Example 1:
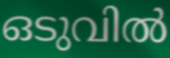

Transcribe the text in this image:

ഒടുവിൽ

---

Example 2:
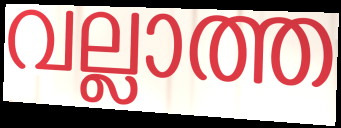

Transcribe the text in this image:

വല്ലാത്ത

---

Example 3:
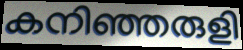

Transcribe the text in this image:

കനിഞ്ഞരുളി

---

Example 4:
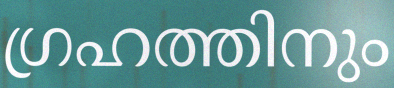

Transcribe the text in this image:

ഗ്രഹത്തിനും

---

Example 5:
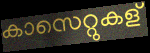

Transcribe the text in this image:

കാസെറ്റുകള്